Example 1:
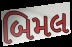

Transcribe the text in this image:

બિમલ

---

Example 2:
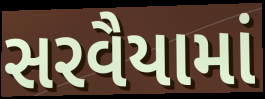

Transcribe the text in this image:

સરવૈયામાં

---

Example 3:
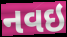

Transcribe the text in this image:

નવઇ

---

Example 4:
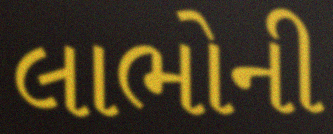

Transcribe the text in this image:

લાભોની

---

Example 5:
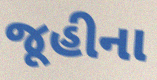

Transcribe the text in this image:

જૂહીના